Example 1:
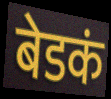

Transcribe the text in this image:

बेडकं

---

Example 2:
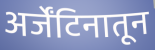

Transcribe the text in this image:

अर्जेंटिनातून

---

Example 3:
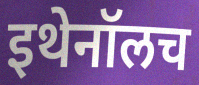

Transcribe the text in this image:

इथेनॉलच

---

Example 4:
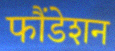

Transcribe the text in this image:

फौंडेशन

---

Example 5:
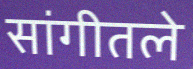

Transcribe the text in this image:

सांगीतले